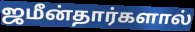
ஜமீன்தார்களால்